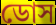
ডোস